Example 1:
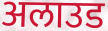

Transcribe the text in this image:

अलाउड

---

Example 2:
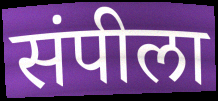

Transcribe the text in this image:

संपीला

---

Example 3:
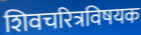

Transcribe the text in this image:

शिवचरित्रविषयक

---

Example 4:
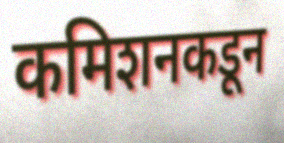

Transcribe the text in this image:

कमिशनकडून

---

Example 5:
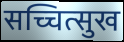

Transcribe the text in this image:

सच्चित्सुख